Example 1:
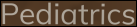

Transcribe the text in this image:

Pediatrics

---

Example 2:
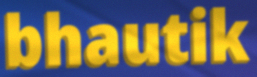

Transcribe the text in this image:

bhautik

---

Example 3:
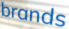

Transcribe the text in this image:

brands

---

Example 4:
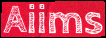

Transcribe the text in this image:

Aiims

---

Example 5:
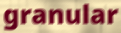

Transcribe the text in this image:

granular